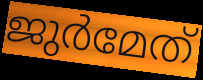
ജുർമേത്